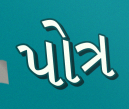
પોત્ર